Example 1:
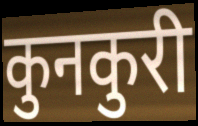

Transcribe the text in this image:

कुनकुरी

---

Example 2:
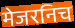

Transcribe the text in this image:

मेजरनिच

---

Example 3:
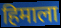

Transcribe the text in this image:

हिमाला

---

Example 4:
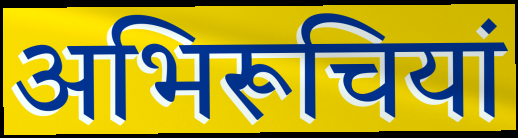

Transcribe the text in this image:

अभिरूचियां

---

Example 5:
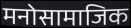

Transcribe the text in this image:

मनोसामाजिक